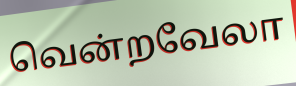
வென்றவேலா